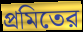
প্রমিতের